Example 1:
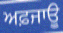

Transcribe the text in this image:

ਅਫ਼ਜਾਊ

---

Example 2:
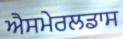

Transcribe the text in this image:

ਐਸਮੇਰਲਡਾਸ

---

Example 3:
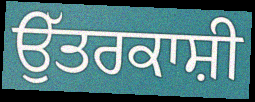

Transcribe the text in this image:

ਉੱਤਰਕਾਸ਼ੀ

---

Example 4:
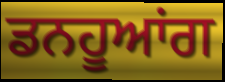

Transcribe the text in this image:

ਡਨਹੂਆਂਗ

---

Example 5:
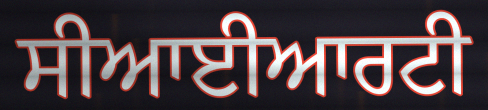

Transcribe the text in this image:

ਸੀਆਈਆਰਟੀ